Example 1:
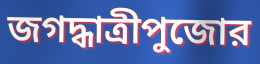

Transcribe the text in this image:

জগদ্ধাত্রীপুজোর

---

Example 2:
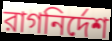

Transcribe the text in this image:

রাগনির্দেশ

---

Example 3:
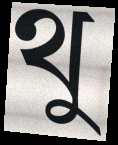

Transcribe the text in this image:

থু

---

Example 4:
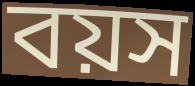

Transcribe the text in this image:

বয়স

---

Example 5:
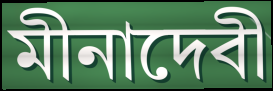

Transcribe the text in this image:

মীনাদেবী